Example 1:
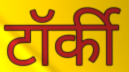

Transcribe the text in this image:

टॉर्की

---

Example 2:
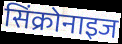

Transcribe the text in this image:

सिंक्रोनाइज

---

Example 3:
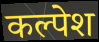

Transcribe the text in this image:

कल्पेश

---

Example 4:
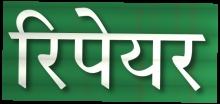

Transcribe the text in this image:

रिपेयर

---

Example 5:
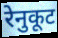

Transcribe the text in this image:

रेनुकूट